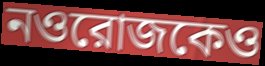
নওরোজকেও